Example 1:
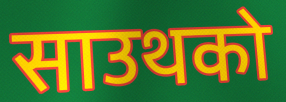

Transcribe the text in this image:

साउथको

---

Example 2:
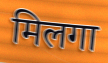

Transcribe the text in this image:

मिलगा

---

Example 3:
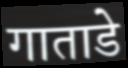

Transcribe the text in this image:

गाताडे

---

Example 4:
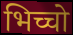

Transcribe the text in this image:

भिच्चो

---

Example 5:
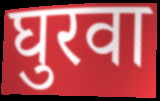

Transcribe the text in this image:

घुरवा